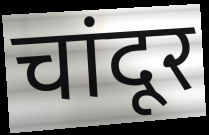
चांदूर